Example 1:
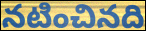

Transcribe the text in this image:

నటించినది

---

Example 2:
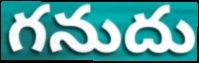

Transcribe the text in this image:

గనుదు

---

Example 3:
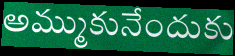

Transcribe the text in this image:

అమ్ముకునేందుకు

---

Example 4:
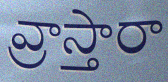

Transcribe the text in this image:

వ్రాస్తారా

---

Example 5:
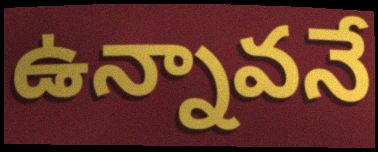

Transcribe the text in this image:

ఉన్నావనే